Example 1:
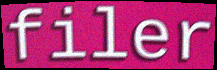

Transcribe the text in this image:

filer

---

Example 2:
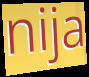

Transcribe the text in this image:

nija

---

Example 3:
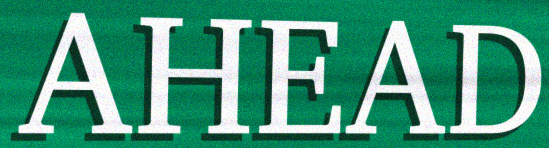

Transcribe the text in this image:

AHEAD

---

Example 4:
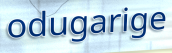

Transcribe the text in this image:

odugarige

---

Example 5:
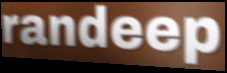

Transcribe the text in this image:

randeep